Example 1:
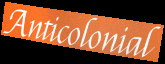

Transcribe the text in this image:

Anticolonial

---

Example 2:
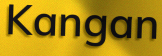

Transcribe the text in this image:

Kangan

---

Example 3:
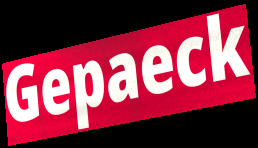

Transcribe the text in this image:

Gepaeck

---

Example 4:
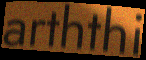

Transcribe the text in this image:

arththi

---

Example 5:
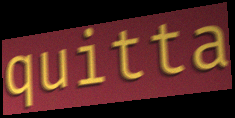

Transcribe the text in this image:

quitta